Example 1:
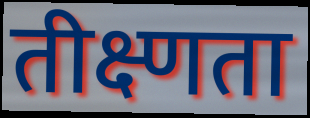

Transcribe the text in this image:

तीक्ष्णता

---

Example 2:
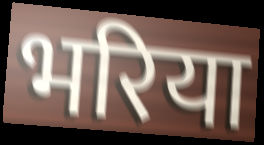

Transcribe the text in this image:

भरिया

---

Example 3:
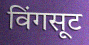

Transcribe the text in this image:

विंगसूट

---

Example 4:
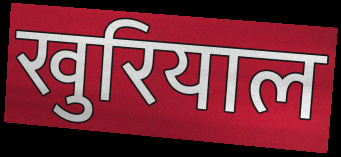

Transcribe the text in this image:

खुरियाल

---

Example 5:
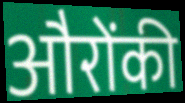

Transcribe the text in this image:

औरोंकी